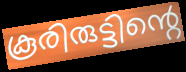
കൂരിരുട്ടിന്റെ